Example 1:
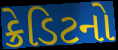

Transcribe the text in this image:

ક્રેડિટનો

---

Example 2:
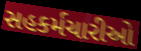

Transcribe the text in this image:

સહકર્મચારીઓ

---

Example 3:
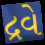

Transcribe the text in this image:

દ્રવે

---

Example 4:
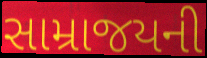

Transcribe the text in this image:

સામ્રાજયની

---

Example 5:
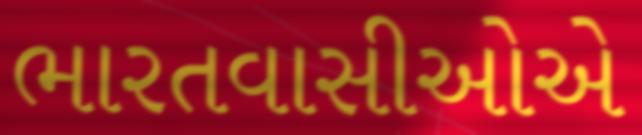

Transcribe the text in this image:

ભારતવાસીઓએ